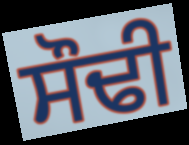
ਸੌਢੀ